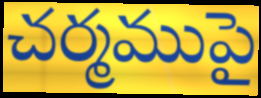
చర్మముపై